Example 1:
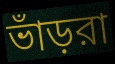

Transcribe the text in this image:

ভাঁড়রা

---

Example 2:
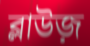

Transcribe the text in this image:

ব্লাউজ়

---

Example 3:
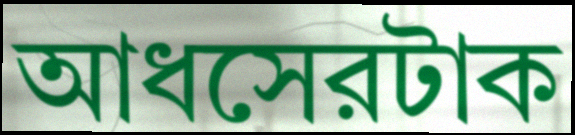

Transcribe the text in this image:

আধসেরটাক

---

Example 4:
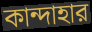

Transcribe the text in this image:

কান্দাহার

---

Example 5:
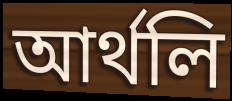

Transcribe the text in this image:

আর্থলি